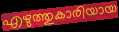
എഴുത്തുകാരിയായ